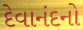
દેવાનંદનો